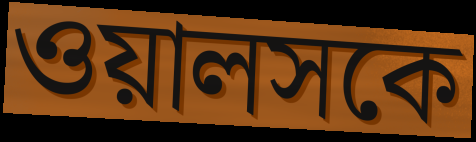
ওয়ালসকে